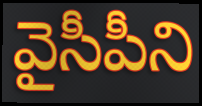
వైసీపీని